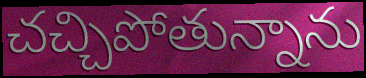
చచ్చిపోతున్నాను